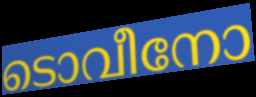
ടൊവീനോ